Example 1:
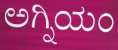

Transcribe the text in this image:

ಅಗ್ನಿಯಂ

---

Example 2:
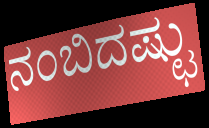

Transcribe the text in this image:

ನಂಬಿದಷ್ಟು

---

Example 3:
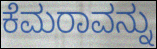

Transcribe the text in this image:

ಕೆಮರಾವನ್ನು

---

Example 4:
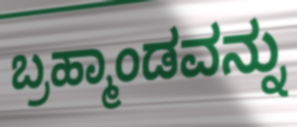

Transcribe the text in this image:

ಬ್ರಹ್ಮಾಂಡವನ್ನು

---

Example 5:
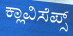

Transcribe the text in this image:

ಕ್ಲಾವಿಸೆಪ್ಸ್